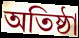
অতিষ্ঠা